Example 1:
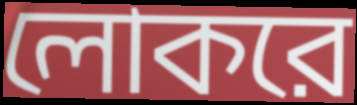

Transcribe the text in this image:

লোকরে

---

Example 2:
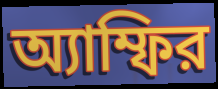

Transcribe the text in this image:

অ্যাম্ফির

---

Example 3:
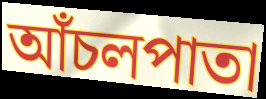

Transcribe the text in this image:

আঁচলপাতা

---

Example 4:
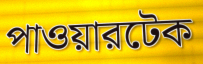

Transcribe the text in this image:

পাওয়ারটেক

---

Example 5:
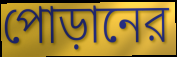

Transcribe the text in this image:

পোড়ানের